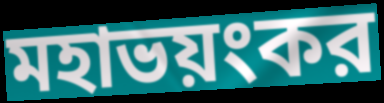
মহাভয়ংকর